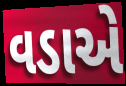
વડાએ